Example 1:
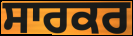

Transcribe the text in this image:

ਸਾਰਕਰ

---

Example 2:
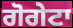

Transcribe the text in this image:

ਗੋਗੇਟਾ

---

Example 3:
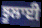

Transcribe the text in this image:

ਝੂਲਾਈ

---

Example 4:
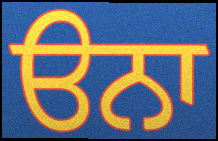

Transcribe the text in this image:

ੳਨਾ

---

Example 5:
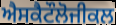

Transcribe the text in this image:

ਐਸਕੈਟੌਲੋਜੀਕਲ